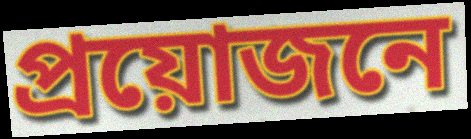
প্ৰয়োজনে